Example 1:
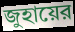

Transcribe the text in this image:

জুহায়ের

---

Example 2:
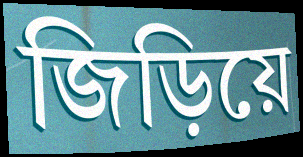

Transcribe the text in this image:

জিড়িয়ে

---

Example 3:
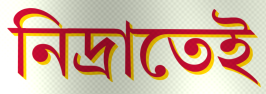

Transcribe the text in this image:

নিদ্রাতেই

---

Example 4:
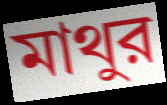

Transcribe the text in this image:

মাথুর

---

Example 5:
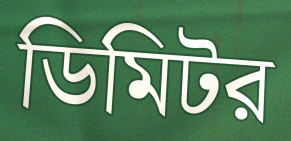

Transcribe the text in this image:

ডিমিটর